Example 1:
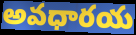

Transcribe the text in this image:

అవధారయ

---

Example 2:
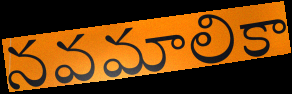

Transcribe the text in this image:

నవమాలికా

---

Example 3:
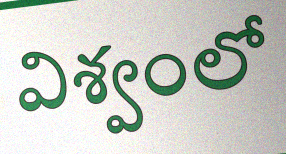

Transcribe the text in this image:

విశ్వంలో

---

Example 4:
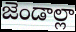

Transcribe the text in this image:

జెండాల్లా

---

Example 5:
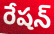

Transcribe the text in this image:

రేషన్